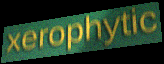
xerophytic